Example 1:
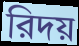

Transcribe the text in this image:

রিদয়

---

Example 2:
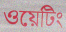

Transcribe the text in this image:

ওয়েটিং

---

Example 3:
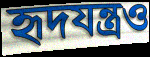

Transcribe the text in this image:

হৃদযন্ত্রও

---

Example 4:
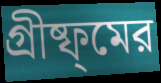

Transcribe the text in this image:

গ্রীষ্ফ্মের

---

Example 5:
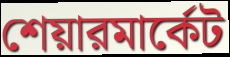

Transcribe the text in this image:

শেয়ারমার্কেট